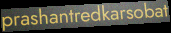
prashantredkarsobat